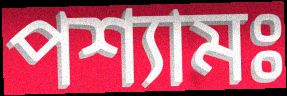
পশ্যামঃ